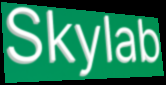
Skylab